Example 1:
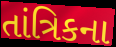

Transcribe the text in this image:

તાંત્રિકના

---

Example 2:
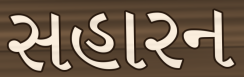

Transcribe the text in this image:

સહારન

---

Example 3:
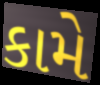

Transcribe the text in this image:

કામે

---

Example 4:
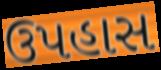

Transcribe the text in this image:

ઉપહાસ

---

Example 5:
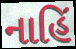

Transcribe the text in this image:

નાહિં